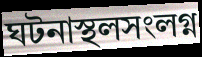
ঘটনাস্থলসংলগ্ন